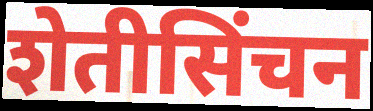
शेतीसिंचन